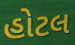
હોટલ